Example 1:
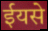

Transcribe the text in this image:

ईयसे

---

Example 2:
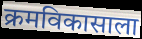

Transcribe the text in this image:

क्रमविकासाला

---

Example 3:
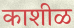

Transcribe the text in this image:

काशीळ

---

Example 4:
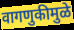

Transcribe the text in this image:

वागणुकीमुळे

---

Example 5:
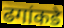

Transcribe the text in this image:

ढगांकडे